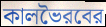
কালভৈরবের